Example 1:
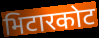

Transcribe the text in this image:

भिटारकोट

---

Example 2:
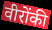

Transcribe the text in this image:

वीरोंकी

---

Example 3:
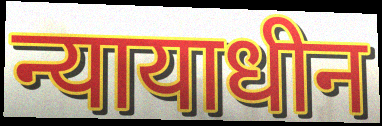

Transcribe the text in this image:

न्यायाधीन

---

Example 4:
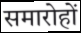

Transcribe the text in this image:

समारोहों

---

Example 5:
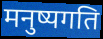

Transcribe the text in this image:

मनुष्यगति